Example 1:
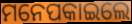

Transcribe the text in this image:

ମନେପକାଇଲେ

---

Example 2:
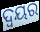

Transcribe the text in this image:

ଦ୍ଵୟର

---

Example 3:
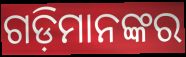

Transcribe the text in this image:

ଗଡ଼ିମାନଙ୍କର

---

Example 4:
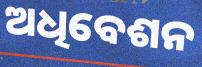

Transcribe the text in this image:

ଅଧିବେଶନ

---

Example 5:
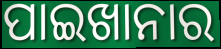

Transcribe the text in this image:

ପାଇଖାନାର